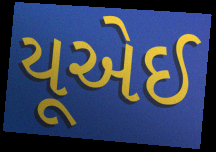
યૂએઈ